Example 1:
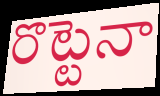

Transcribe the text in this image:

రొట్టెనా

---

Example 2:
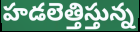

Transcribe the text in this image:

హడలెత్తిస్తున్న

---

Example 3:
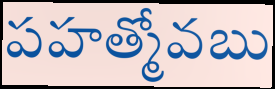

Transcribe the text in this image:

పహత్మోవబు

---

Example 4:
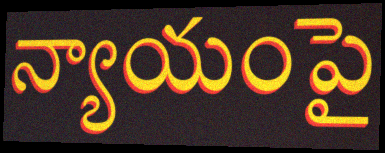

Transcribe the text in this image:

న్యాయంపై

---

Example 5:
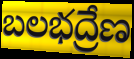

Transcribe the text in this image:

బలభద్రేణ